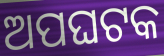
ଅପଘଟକ